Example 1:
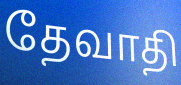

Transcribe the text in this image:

தேவாதி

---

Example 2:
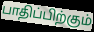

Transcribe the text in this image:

பாதிப்பிற்கும்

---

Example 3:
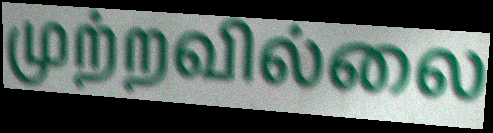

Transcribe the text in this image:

முற்றவில்லை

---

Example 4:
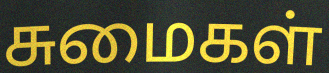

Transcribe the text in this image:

சுமைகள்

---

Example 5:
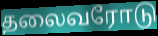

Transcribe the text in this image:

தலைவரோடு